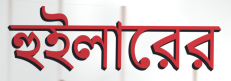
হুইলারের